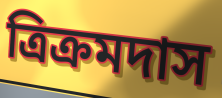
ত্রিক্রমদাস